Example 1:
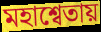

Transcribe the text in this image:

মহাশ্বেতায়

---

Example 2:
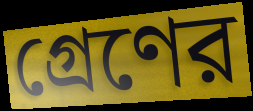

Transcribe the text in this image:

গ্রেণের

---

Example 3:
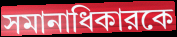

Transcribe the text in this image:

সমানাধিকারকে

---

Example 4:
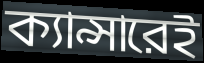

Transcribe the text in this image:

ক্যান্সারেই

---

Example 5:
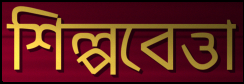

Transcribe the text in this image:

শিল্পবেত্তা